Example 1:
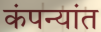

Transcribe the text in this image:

कंपन्यांत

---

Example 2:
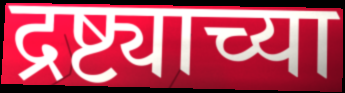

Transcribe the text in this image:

द्रष्ट्याच्या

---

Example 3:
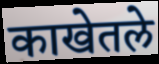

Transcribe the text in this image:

काखेतले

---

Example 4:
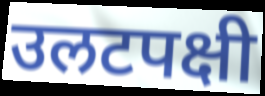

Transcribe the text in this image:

उलटपक्षी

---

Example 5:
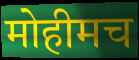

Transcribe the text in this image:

मोहीमच